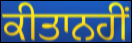
ਕੀਤਾਨਹੀਂ